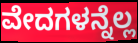
ವೇದಗಳನ್ನೆಲ್ಲ